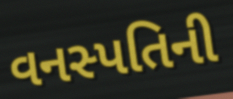
વનસ્પતિની